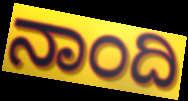
ನಾಂದಿ